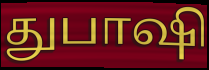
துபாஷி